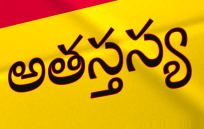
అతస్తస్య